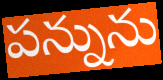
పన్నును